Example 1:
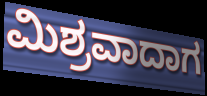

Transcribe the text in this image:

ಮಿಶ್ರವಾದಾಗ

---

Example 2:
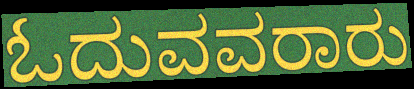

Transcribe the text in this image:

ಓದುವವರಾರು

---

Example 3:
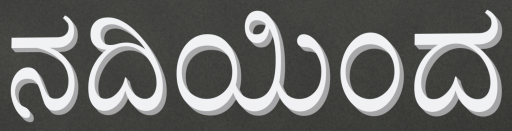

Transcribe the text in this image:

ನದಿಯಿಂದ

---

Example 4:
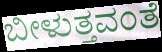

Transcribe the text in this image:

ಬೀಳುತ್ತವಂತೆ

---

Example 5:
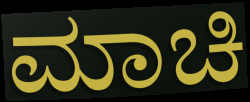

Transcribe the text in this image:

ಮಾಚಿ